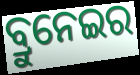
ବ୍ରୁନେଇର